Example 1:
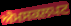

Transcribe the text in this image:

ਐਮਸਕਲਪਟ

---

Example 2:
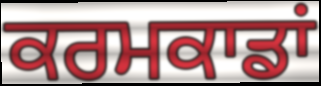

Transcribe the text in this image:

ਕਰਮਕਾਡਾਂ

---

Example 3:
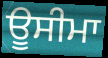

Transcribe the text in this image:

ਊਸੀਮਾ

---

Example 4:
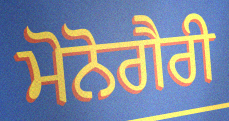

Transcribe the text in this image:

ਮੋਨੋਗੈਰੀ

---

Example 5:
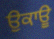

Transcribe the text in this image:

ਉਕਾਊ